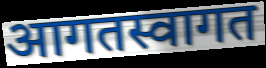
आगतस्वागत